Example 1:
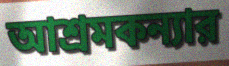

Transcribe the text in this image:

আশ্রমকন্যার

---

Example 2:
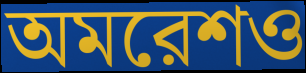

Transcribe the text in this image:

অমরেশও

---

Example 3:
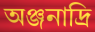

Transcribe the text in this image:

অঞ্জনাদ্রি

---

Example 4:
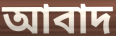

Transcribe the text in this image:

আবাদ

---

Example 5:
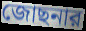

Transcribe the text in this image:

জোছনার